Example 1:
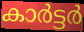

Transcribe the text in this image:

കാർട്ടർ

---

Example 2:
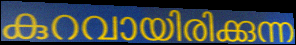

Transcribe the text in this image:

കുറവായിരിക്കുന്ന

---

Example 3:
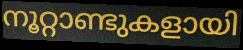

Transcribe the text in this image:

നൂറ്റാണ്ടുകളായി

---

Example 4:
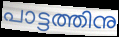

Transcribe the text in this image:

പാട്ടത്തിനു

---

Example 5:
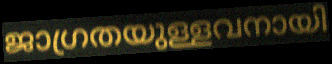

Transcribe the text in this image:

ജാഗ്രതയുള്ളവനായി